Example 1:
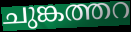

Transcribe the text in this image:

ചുങ്കത്തറ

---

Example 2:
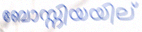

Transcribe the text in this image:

ബോസ്നിയയില്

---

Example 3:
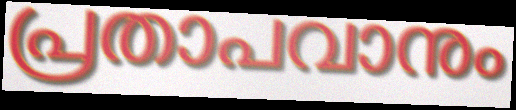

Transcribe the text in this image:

പ്രതാപവാനും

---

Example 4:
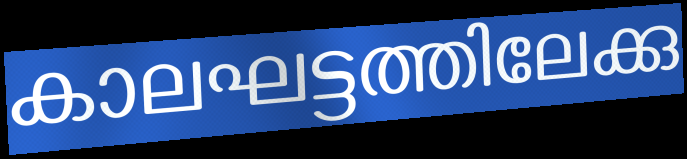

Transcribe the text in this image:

കാലഘട്ടത്തിലേക്കു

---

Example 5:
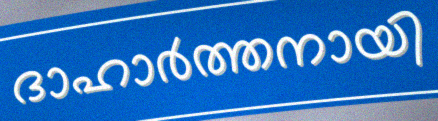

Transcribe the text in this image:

ദാഹാർത്തനായി